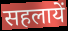
सहलायें